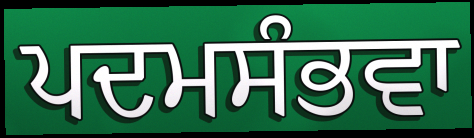
ਪਦਮਸੰਭਵਾ